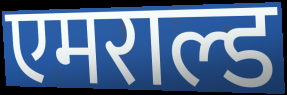
एमराल्ड